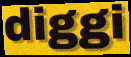
diggi